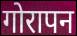
गोरापन